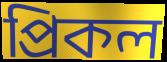
প্রিকল